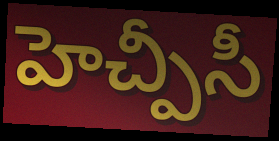
హెచ్పీసీ